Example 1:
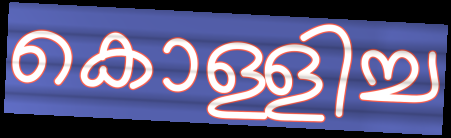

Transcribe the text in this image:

കൊള്ളിച്ച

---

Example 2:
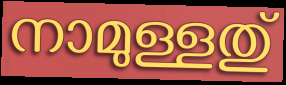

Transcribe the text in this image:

നാമുള്ളതു്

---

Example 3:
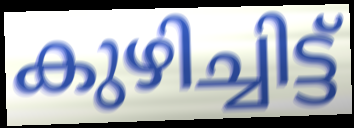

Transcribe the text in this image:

കുഴിച്ചിട്ട്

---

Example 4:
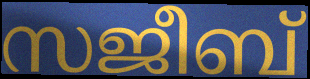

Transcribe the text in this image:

സജീബ്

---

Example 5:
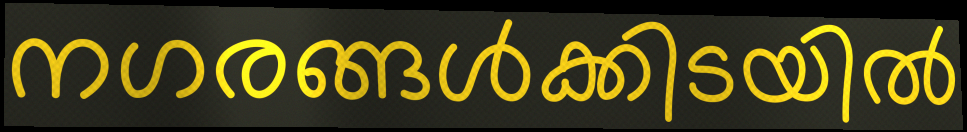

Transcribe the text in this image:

നഗരങ്ങൾക്കിടയിൽ